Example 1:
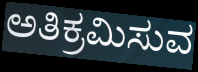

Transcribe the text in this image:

ಅತಿಕ್ರಮಿಸುವ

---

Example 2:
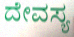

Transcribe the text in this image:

ದೇವಸ್ಯ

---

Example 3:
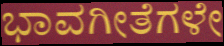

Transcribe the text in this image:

ಭಾವಗೀತೆಗಳೇ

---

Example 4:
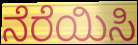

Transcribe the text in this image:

ನೆರೆಯಿಸಿ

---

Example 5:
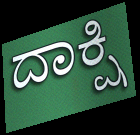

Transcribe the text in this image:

ದಾಕ್ಷಿ